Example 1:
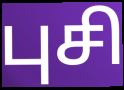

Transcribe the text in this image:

புசி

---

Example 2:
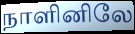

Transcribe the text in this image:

நாளினிலே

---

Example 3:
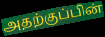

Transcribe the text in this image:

அதற்குப்பின்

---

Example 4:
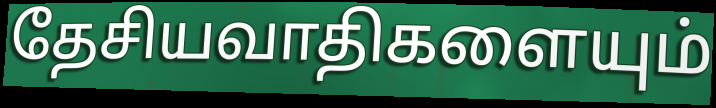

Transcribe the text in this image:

தேசியவாதிகளையும்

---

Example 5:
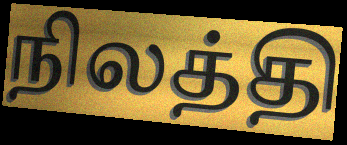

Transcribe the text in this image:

நிலத்தி